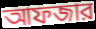
আফজার